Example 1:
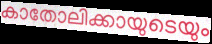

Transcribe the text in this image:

കാതോലിക്കായുടെയും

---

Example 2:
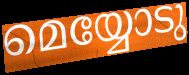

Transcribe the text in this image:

മെയ്യോടു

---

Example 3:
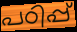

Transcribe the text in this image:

പഠിപ്പ്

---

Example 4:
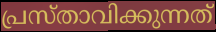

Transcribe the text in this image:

പ്രസ്താവിക്കുന്നത്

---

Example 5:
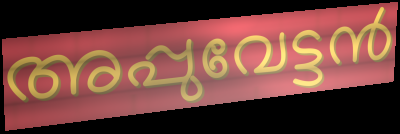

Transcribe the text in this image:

അപ്പുവേട്ടൻ